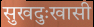
सुखदुःखासी